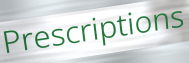
Prescriptions